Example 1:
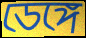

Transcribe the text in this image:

ডেঙ্গে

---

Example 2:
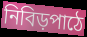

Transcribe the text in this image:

নিবিড়পাঠে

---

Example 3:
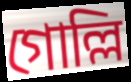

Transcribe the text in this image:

গোল্লি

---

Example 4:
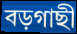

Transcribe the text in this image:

বড়গাছী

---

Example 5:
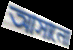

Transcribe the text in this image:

আসানো